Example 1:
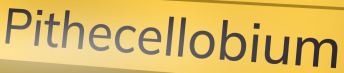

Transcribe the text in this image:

Pithecellobium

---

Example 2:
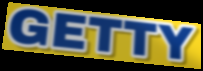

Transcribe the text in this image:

GETTY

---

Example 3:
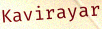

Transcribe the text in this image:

Kavirayar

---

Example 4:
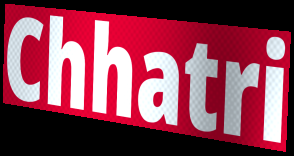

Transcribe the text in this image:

Chhatri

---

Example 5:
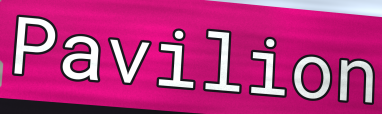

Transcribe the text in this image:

Pavilion